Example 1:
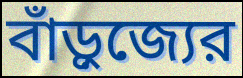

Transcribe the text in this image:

বাঁড়ুজ্যের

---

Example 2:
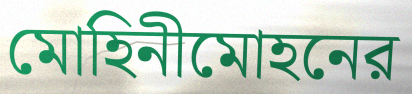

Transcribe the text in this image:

মোহিনীমোহনের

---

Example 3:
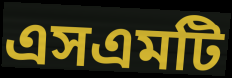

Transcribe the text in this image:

এসএমটি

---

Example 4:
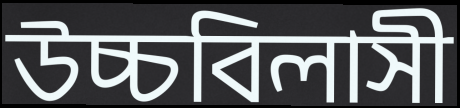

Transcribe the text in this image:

উচ্চবিলাসী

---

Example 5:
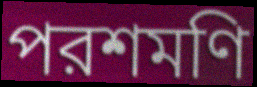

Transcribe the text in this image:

পরশমণি